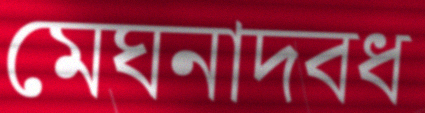
মেঘনাদবধ